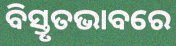
ବିସ୍ତୃତଭାବରେ